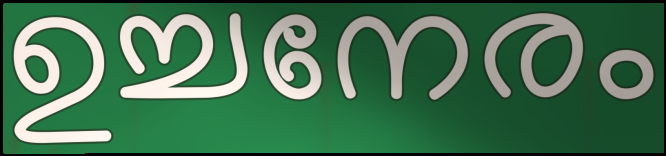
ഉച്ചനേരം